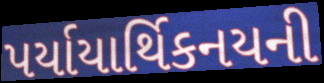
પર્યાયાર્થિકનયની